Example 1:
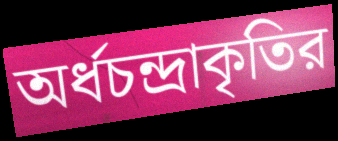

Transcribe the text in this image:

অর্ধচন্দ্রাকৃতির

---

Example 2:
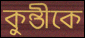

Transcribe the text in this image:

কুন্তীকে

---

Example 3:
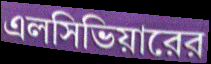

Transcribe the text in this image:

এলসিভিয়ারের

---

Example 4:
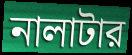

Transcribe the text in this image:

নালাটার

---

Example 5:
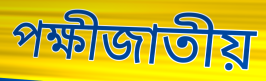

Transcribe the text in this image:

পক্ষীজাতীয়